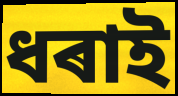
ধৰাই